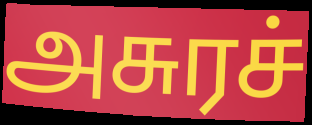
அசுரச்